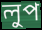
লুপ